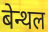
बेन्थल